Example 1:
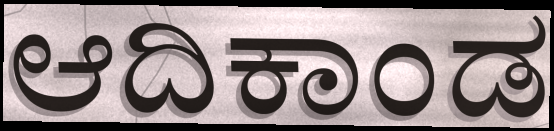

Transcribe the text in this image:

ಆದಿಕಾಂಡ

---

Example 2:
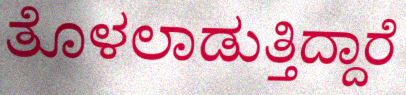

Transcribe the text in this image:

ತೊಳಲಾಡುತ್ತಿದ್ದಾರೆ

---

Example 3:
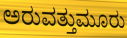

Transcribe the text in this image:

ಅರುವತ್ತುಮೂರು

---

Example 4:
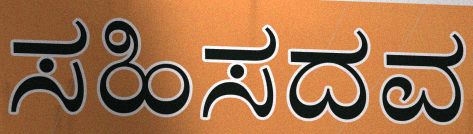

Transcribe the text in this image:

ಸಹಿಸದವ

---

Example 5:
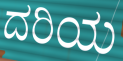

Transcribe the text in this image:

ದರಿಯ